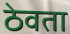
ठेवता